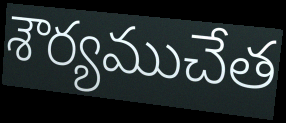
శౌర్యముచేత